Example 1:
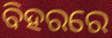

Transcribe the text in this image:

ବିହରରେ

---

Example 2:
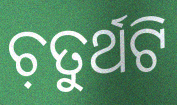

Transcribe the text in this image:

ଚ଼ତୁର୍ଥଟି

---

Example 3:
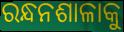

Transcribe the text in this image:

ରନ୍ଧନଶାଳାକୁ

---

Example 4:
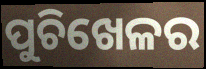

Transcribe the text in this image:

ପୁଚିଖେଳର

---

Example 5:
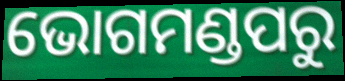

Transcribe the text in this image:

ଭୋଗମଣ୍ଡପରୁ